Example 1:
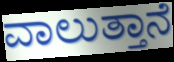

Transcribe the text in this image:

ವಾಲುತ್ತಾನೆ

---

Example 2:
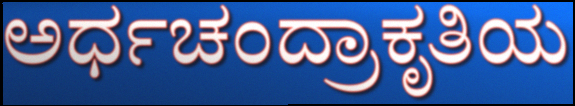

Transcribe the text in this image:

ಅರ್ಧಚಂದ್ರಾಕೃತಿಯ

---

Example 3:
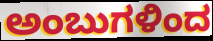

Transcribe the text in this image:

ಅಂಬುಗಳಿಂದ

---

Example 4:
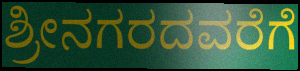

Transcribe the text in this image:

ಶ್ರೀನಗರದವರೆಗೆ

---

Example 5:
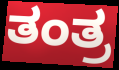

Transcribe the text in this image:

ತಂತ್ರ